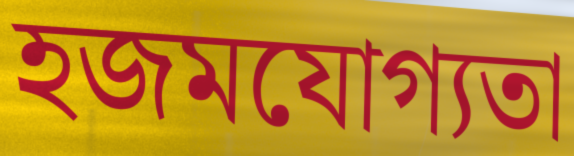
হজমযোগ্যতা